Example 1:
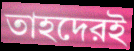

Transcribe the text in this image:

তাহদেরই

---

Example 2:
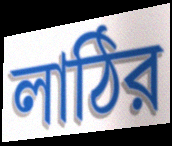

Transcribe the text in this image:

লাঠির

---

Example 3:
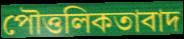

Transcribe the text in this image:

পৌত্তলিকতাবাদ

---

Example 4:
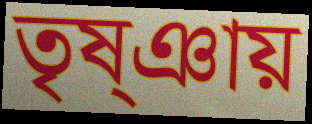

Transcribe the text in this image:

তৃষ্ঞায়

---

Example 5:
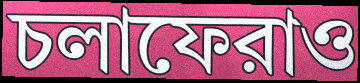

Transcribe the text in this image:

চলাফেরাও